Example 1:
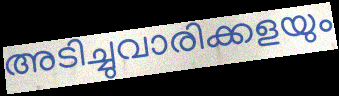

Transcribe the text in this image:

അടിച്ചുവാരിക്കളയും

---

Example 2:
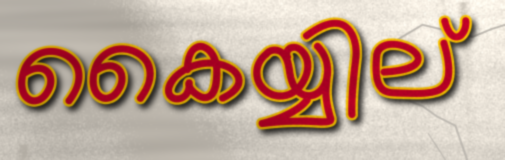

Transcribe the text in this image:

കൈയ്യില്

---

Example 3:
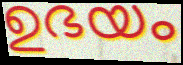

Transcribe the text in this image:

ഉഭയം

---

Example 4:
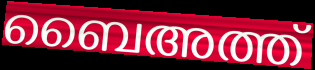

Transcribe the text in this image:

ബൈഅത്ത്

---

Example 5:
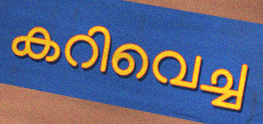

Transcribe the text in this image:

കറിവെച്ച